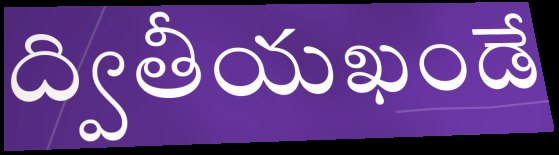
ద్వితీయఖండే